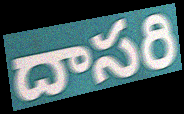
దాసరి